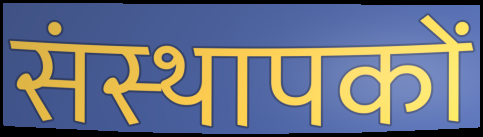
संस्थापकों